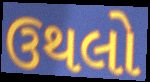
ઉથલો